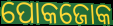
ପୋକଜୋକ